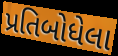
પ્રતિબોધેલા